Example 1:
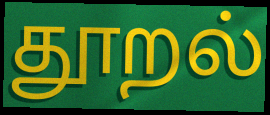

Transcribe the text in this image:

தூறல்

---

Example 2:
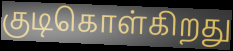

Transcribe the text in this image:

குடிகொள்கிறது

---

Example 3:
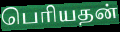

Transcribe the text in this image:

பெரியதன்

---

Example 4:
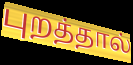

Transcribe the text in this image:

புறத்தால்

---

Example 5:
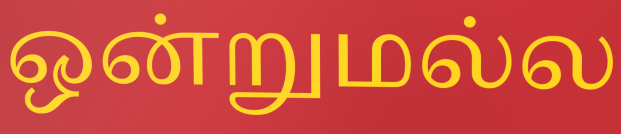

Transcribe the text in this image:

ஒன்றுமல்ல